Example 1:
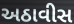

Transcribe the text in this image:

અઠાવીસ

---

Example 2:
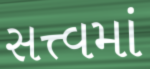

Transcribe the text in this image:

સત્ત્વમાં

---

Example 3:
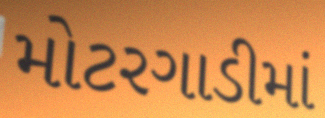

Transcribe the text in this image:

મોટરગાડીમાં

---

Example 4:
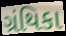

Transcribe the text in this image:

ગ્રંથિકા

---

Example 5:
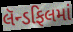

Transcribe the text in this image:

લૅન્ડફિલમાં